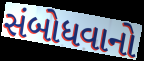
સંબોધવાનો